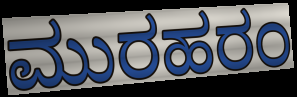
ಮುರಹರಂ